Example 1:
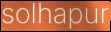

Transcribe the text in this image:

solhapur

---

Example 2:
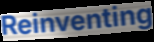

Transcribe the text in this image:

Reinventing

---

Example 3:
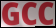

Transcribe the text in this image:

GCC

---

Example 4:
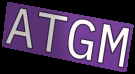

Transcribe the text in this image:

ATGM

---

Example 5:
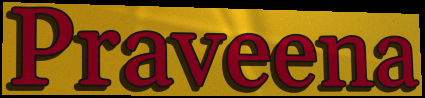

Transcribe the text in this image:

Praveena